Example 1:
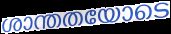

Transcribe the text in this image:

ശാന്തതയോടെ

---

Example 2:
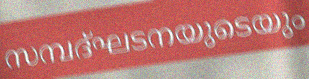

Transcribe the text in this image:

സമ്പദ്ഘടനയുടെയും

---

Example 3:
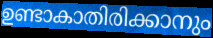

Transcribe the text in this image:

ഉണ്ടാകാതിരിക്കാനും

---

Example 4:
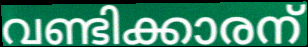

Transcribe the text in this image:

വണ്ടിക്കാരന്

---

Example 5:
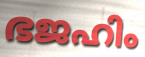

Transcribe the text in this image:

ഭജഹിം